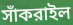
সাঁকরাইল